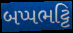
બપ્પભટ્ટિ